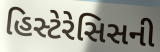
હિસ્ટેરેસિસની